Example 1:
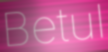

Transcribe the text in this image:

Betul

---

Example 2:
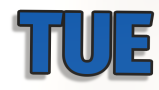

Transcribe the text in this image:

TUE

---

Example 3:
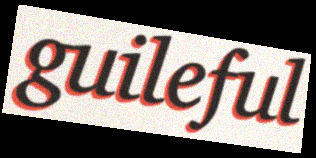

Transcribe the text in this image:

guileful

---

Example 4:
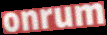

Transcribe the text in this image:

onrum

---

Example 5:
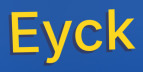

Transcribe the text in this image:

Eyck